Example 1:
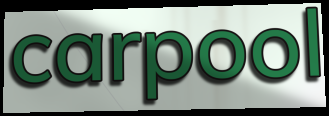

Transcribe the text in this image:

carpool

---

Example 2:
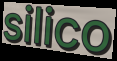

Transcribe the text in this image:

silico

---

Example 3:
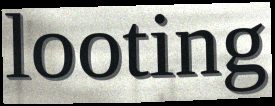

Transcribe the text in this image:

looting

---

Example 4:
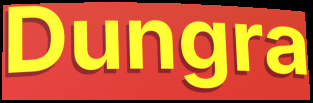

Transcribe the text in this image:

Dungra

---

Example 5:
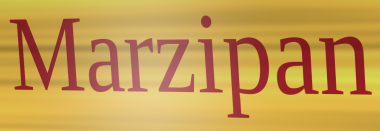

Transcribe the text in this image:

Marzipan